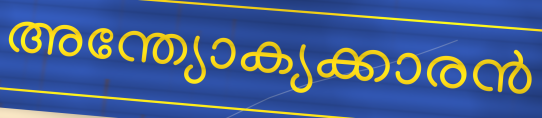
അന്ത്യോക്യക്കാരൻ